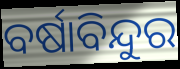
ବର୍ଷାବିନ୍ଦୁର